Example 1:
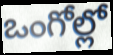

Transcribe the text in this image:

ఒంగోల్లో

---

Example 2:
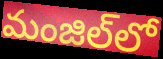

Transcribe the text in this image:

మంజిల్‌లో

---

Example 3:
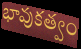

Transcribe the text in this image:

భావుకత్వం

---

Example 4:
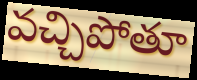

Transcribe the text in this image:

వచ్చిపోతూ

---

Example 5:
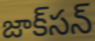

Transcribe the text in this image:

జాక్‌సన్